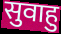
सुवाहु